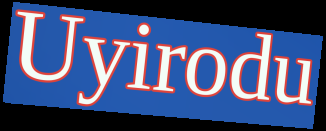
Uyirodu